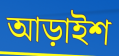
আড়াইশ